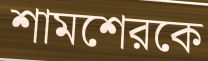
শামশেরকে